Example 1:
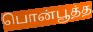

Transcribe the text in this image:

பொன்பூத்த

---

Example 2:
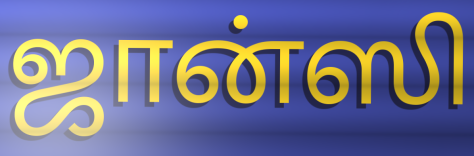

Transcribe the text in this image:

ஜான்ஸி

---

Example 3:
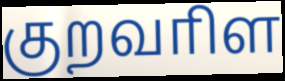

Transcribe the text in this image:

குறவரிள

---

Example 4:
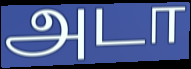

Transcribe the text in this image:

அடா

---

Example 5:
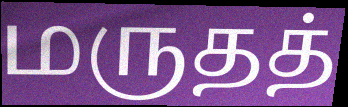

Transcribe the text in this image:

மருதத்